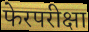
फेरपरीक्षा